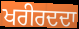
ਖਰੀਰਦਦਾ